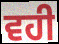
ਵਹੀ